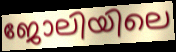
ജോലിയിലെ